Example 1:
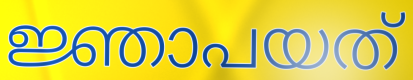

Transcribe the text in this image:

ജ്ഞാപയത്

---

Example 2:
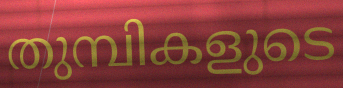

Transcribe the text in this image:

തുമ്പികളുടെ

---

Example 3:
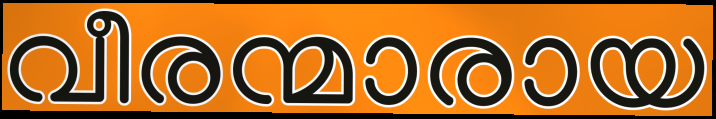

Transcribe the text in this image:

വീരന്മാരായ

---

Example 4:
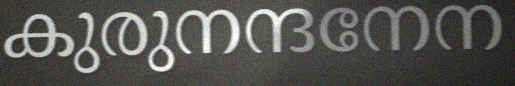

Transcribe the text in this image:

കുരുനന്ദനേന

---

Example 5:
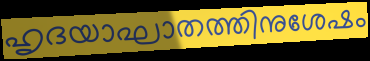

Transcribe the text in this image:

ഹൃദയാഘാതത്തിനുശേഷം